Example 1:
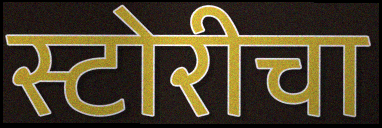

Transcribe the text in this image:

स्टोरीचा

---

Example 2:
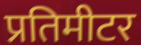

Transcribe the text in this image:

प्रतिमीटर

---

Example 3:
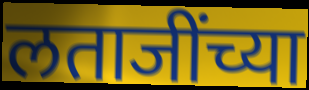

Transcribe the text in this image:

लताजींच्या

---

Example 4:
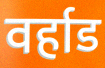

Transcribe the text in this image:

वर्हाड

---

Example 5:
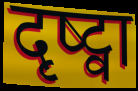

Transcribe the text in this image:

दृष्ट्वा